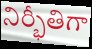
నిర్భీతిగా